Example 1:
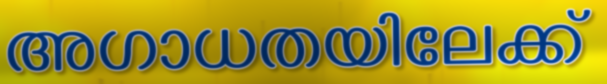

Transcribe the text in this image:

അഗാധതയിലേക്ക്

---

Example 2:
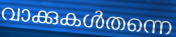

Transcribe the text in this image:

വാക്കുകൾതന്നെ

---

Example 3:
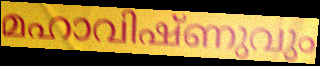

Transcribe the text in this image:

മഹാവിഷ്ണുവും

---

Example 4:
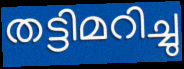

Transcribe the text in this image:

തട്ടിമറിച്ചു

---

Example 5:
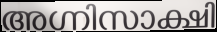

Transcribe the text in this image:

അഗ്നിസാക്ഷി